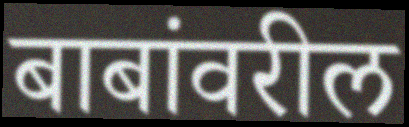
बाबांवरील